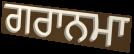
ਗਰਾਨਮਾ